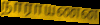
நாராயணன